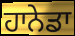
ਹਾਨੇਡਾ